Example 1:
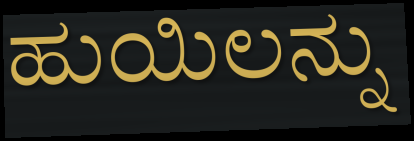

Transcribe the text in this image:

ಹುಯಿಲನ್ನು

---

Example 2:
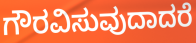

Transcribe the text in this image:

ಗೌರವಿಸುವುದಾದರೆ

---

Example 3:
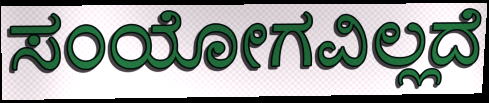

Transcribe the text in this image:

ಸಂಯೋಗವಿಲ್ಲದೆ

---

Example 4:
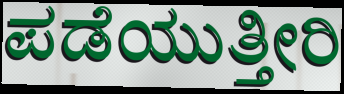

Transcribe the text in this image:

ಪಡೆಯುತ್ತೀರಿ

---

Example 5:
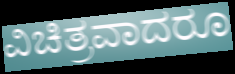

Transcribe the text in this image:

ವಿಚಿತ್ರವಾದರೂ